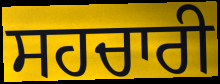
ਸਹਚਾਰੀ